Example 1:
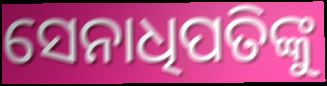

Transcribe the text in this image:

ସେନାଧିପତିଙ୍କୁ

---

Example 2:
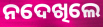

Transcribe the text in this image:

ନଦେଖିଲେ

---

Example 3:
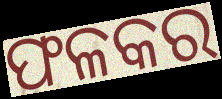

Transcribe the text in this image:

ଫଳକର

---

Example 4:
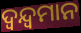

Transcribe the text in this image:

ଦ୍ଵନ୍ଦ୍ଵମାନ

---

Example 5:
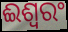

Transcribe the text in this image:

ଈଶ୍ଵରଂ